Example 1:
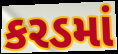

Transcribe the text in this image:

કરડમાં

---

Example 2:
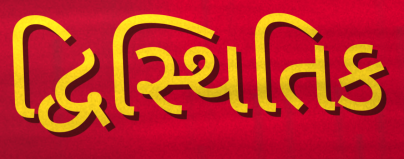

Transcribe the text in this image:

દ્વિસ્થિતિક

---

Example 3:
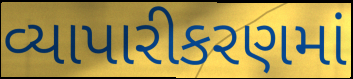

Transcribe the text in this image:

વ્યાપારીકરણમાં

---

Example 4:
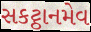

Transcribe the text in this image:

સકટ્ઠાનમેવ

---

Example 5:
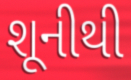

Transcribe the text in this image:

શૂનીથી